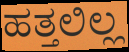
ಹತ್ತಲಿಲ್ಲ